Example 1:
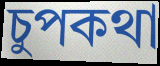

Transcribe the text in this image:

চুপকথা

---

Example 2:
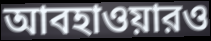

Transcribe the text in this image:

আবহাওয়ারও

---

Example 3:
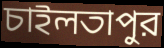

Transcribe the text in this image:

চাইলতাপুর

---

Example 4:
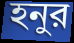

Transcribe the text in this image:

হনুর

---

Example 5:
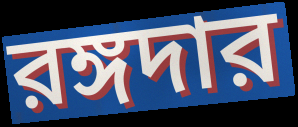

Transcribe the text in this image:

রঙ্গদার